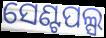
ସେଣ୍ଟପଲ୍ସ